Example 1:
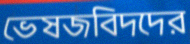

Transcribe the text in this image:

ভেষজবিদদের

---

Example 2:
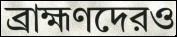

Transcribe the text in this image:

ব্রাহ্মণদেরও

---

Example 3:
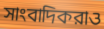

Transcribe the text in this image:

সাংবাদিকরাও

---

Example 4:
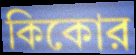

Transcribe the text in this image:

কিকোর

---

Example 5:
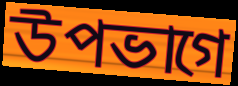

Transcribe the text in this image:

উপভাগে